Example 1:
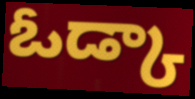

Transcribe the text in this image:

ఓడ్కా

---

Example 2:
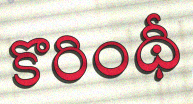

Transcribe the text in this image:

కొరింథీ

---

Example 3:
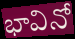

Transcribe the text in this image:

భావినో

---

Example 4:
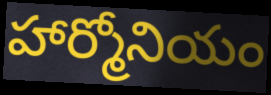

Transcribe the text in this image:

హార్మోనియం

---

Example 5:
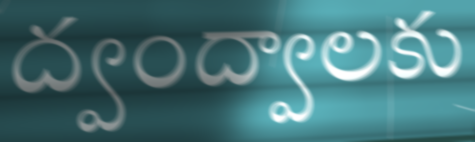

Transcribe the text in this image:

ద్వంద్వాలకు